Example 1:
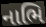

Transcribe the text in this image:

નાભિ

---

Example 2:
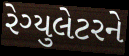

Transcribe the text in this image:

રેગ્યુલેટરને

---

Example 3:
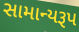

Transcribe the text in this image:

સામાન્યરૂપ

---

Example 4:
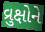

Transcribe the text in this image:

વ્રુક્ષોને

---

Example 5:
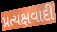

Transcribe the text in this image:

પ્રત્યક્ષવાદી